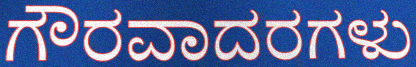
ಗೌರವಾದರಗಳು